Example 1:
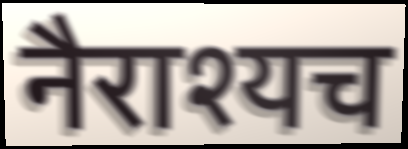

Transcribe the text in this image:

नैराश्यच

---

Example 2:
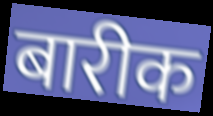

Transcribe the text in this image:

बारीक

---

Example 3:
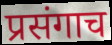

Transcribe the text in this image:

प्रसंगाच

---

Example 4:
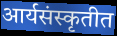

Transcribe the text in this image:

आर्यसंस्कृतीत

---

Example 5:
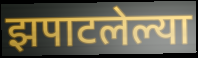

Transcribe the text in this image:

झपाटलेल्या